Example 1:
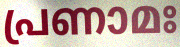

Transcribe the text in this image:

പ്രണാമഃ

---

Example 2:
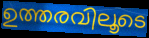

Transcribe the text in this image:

ഉത്തരവിലൂടെ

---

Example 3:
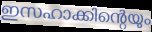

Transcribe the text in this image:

ഇസഹാക്കിന്റെയും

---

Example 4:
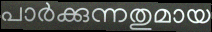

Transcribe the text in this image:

പാർക്കുന്നതുമായ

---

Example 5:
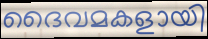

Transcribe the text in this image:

ദൈവമകളായി